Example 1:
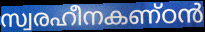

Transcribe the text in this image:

സ്വരഹീനകണ്ഠൻ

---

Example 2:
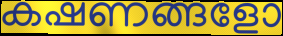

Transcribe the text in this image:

കഷണങ്ങളോ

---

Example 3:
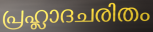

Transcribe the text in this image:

പ്രഹ്ലാദചരിതം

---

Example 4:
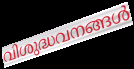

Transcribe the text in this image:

വിശുദ്ധവനങ്ങൾ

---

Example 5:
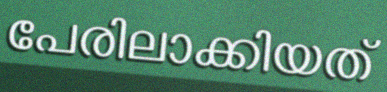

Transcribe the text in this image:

പേരിലാക്കിയത്